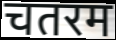
चतरम